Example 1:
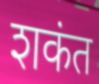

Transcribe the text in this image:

शकंत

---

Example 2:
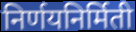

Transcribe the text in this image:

निर्णयनिर्मिती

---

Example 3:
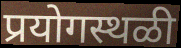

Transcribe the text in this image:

प्रयोगस्थळी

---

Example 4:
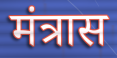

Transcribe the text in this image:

मंत्रास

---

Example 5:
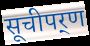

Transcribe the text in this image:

सूचीपर्ण